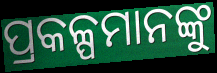
ପ୍ରକଳ୍ପମାନଙ୍କୁ